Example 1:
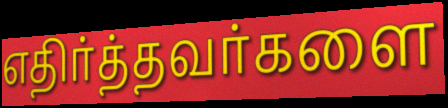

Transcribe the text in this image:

எதிர்த்தவர்களை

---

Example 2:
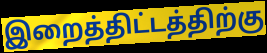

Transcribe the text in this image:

இறைத்திட்டத்திற்கு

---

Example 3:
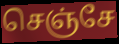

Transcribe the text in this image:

செஞ்சே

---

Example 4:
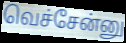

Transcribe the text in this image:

வெச்சேன்னு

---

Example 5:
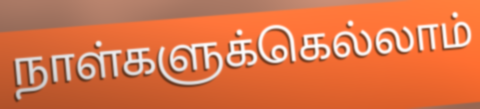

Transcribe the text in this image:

நாள்களுக்கெல்லாம்